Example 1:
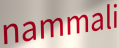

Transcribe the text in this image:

nammali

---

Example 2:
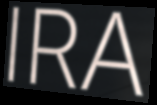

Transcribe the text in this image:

IRA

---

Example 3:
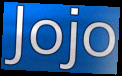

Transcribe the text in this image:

Jojo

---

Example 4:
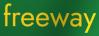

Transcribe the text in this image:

freeway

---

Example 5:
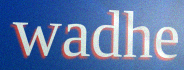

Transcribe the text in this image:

wadhe